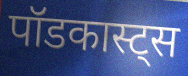
पॉडकास्ट्स